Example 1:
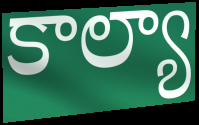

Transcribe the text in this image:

కాల్యా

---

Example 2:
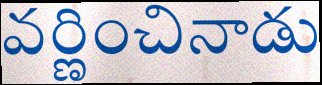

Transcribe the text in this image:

వర్ణించినాడు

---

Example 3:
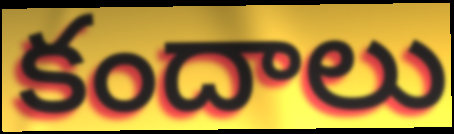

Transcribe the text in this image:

కందాలు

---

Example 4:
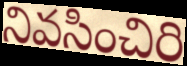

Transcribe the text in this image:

నివసించిరి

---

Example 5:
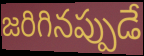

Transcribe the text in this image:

జరిగినప్పుడే